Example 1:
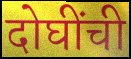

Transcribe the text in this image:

दोघींची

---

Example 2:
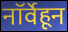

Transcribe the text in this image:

नॉर्वेहून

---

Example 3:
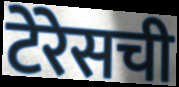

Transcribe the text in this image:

टेरेसची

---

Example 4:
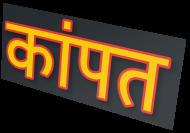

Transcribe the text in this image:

कांपत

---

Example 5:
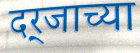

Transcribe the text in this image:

दर्जाच्या